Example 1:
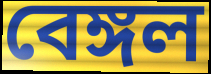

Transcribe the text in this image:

বেঙ্গল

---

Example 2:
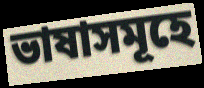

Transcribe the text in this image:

ভাষাসমূহে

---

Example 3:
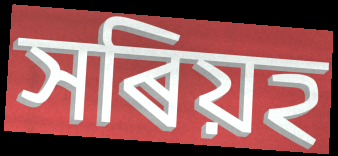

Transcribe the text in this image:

সৰিয়হ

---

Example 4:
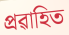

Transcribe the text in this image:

প্ৰৱাহিত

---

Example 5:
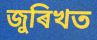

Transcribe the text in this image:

জুৰিখত